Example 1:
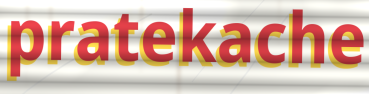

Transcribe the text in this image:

pratekache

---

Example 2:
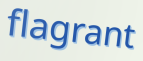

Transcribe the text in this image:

flagrant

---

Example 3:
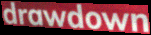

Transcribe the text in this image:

drawdown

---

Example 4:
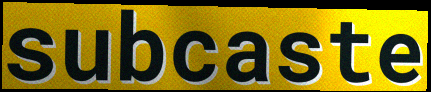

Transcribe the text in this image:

subcaste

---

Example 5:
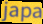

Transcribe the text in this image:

japa